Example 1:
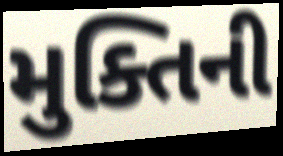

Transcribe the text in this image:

મુક્તિની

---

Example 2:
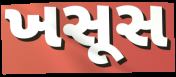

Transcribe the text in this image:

ખસૂસ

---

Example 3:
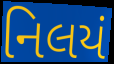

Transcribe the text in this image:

નિલયં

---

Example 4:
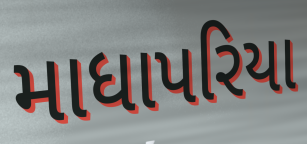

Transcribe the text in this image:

માધાપરિયા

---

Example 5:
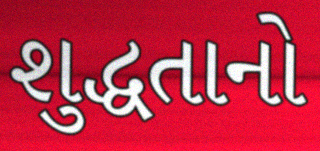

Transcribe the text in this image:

શુદ્ધતાનો